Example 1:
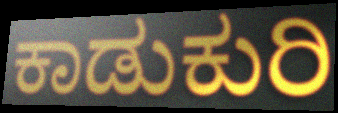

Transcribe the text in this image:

ಕಾಡುಕುರಿ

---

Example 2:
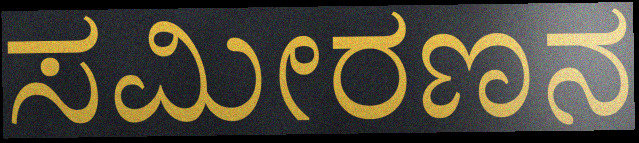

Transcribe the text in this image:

ಸಮೀರಣನ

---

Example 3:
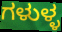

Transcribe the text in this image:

ಗಳುಳ್ಳ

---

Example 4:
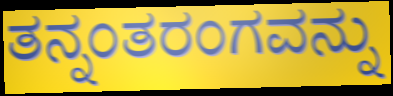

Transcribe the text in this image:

ತನ್ನಂತರಂಗವನ್ನು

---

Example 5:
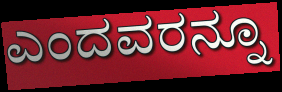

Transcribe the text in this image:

ಎಂದವರನ್ನೂ